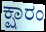
ಕ್ಷಾರಂ